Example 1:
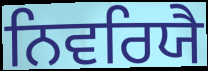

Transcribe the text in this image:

ਨਿਵਰਿਯੈ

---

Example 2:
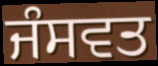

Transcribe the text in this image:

ਜੰਸਵਤ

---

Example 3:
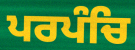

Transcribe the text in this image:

ਪਰਪੰਚਿ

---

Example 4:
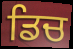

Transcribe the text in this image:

ਡਿਚ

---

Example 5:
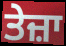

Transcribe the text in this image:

ਤੇਜ਼ਾ